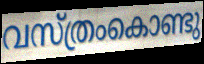
വസ്ത്രംകൊണ്ടു